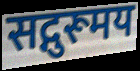
सद्गुरूमय